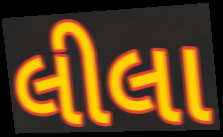
લીલા